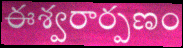
ఈశ్వరార్పణం